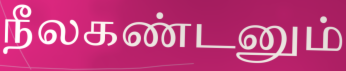
நீலகண்டனும்